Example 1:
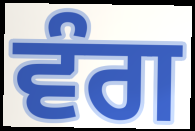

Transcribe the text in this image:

ਵੰਗ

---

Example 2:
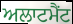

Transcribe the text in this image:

ਅਲਾਟਮੈਂਟ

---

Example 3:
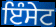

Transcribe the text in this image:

ਇੰਸੇਟ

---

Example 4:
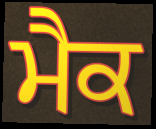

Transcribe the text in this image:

ਮੈਕ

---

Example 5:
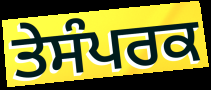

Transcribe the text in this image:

ਤੇਸੰਪਰਕ